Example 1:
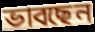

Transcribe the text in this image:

ভাবছেন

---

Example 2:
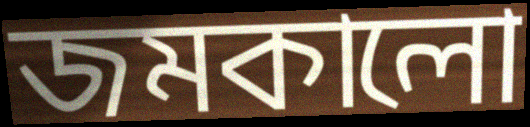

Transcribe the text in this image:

জমকালো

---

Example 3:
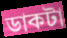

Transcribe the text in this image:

ডাকটা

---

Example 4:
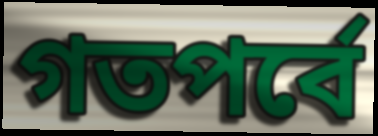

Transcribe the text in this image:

গতপর্বে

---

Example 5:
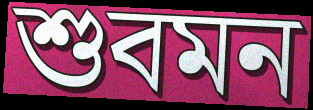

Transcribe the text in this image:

শুবমন